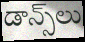
డాన్స్‌లు